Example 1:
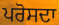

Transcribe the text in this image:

ਪਰੋਸਦਾ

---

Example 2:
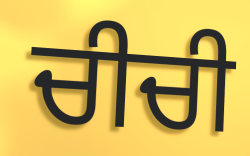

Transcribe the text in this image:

ਚੀਚੀ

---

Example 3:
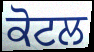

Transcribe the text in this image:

ਕੋਟਲ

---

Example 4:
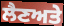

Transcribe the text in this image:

ਲੈਣਅਤੇ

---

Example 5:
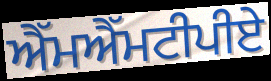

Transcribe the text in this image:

ਐੱਮਐੱਮਟੀਪੀਏ